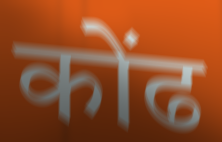
कोंढ